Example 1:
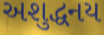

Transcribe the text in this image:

અશુદ્ધનય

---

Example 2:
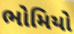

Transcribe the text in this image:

ભોમિયો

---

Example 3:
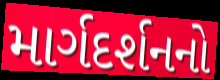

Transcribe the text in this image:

માર્ગદર્શનનો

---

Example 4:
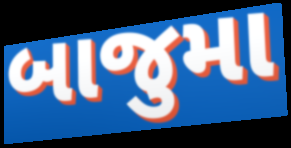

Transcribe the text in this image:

બાજુમા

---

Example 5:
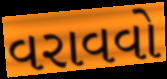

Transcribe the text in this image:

વરાવવો